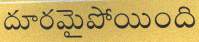
దూరమైపోయింది